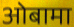
ओबामा